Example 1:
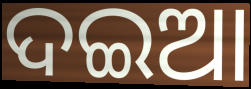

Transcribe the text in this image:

ଦଇଆ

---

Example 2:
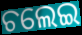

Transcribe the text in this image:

ଚଲେଇ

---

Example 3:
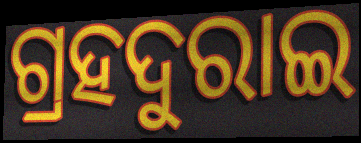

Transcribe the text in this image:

ଗ୍ରହଦୁରାଇ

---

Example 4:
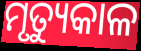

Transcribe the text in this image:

ମୃତ୍ୟୁକାଳ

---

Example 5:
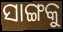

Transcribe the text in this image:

ସାଙ୍ଗକୁ